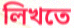
লিখতে